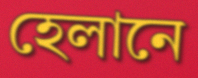
হেলানে